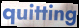
quitting